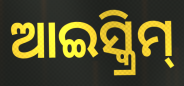
ଆଇସ୍କ୍ରିମ୍